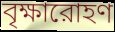
বৃক্ষারোহণ